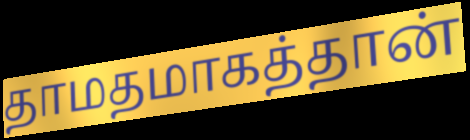
தாமதமாகத்தான்